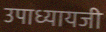
उपाध्यायजी